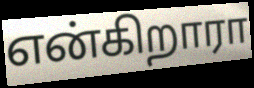
என்கிறாரா